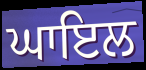
ਘਾਇਲ